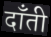
दाँती